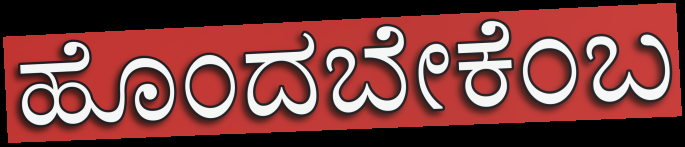
ಹೊಂದಬೇಕೆಂಬ